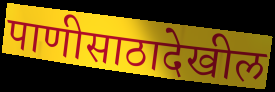
पाणीसाठादेखील